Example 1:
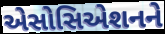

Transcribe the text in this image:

એસોસિએશનને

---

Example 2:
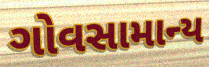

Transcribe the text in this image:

ગોવસામાન્ય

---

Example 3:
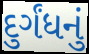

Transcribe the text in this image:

દુર્ગંધનું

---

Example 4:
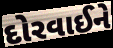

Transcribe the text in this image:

દોરવાઈને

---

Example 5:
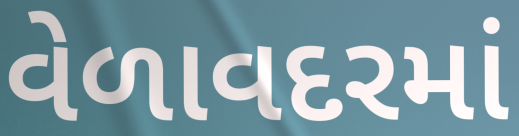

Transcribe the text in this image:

વેળાવદરમાં